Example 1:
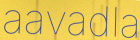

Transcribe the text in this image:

aavadla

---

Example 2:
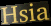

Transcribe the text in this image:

Hsia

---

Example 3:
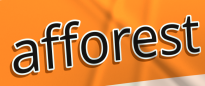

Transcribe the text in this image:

afforest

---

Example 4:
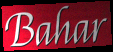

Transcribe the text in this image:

Bahar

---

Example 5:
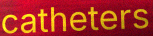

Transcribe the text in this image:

catheters